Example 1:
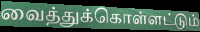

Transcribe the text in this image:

வைத்துக்கொள்ளட்டும்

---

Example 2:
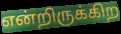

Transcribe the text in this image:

என்றிருக்கிற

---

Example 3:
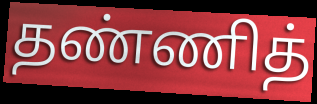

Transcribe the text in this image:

தண்ணித்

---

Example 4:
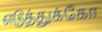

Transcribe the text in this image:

எடுத்துக்கோ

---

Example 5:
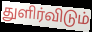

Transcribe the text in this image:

துளிர்விடும்